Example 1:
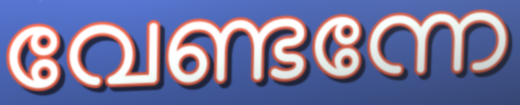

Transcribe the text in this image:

വേണ്ടന്നേ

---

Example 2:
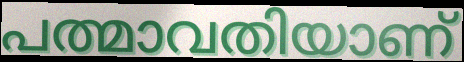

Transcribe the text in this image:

പത്മാവതിയാണ്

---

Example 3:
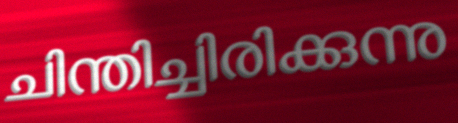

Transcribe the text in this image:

ചിന്തിച്ചിരിക്കുന്നു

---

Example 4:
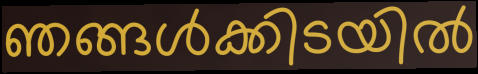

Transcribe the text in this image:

ഞങ്ങൾക്കിടയിൽ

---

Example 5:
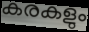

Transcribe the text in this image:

കരകളും